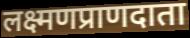
लक्ष्मणप्राणदाता